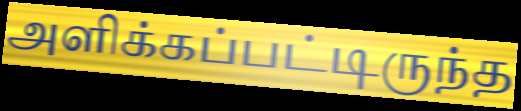
அளிக்கப்பட்டிருந்த